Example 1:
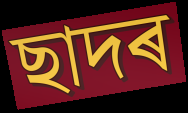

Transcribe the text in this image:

ছাদৰ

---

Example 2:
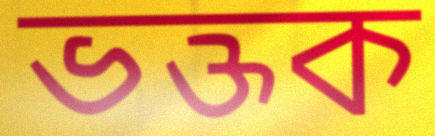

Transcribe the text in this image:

ভক্তক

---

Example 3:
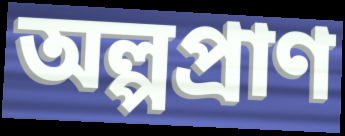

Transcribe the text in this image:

অল্পপ্ৰাণ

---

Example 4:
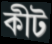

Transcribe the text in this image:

কীট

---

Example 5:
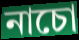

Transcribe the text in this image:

নাচো